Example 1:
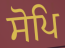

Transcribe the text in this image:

ਸੋਪਿ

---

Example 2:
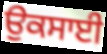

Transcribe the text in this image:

ਉਕਸਾਈ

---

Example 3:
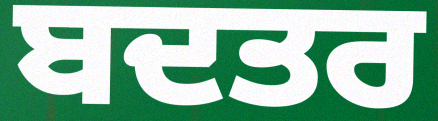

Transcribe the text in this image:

ਬਦਤਰ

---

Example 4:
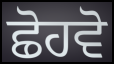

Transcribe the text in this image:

ਛੋਹਵੋ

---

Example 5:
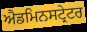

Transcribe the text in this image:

ਐਡਮਿਨਸਟ੍ਰੇਟਰ